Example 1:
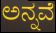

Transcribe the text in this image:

ಅನ್ನವೆ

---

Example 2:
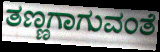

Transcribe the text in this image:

ತಣ್ಣಗಾಗುವಂತೆ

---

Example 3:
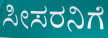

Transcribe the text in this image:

ಸೀಸರನಿಗೆ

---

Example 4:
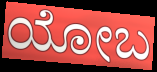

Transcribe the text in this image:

ಯೋಬ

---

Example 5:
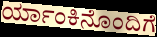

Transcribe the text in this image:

ರ್ಯಾಂಕಿನೊಂದಿಗೆ